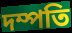
দম্পতি